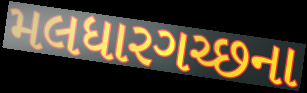
મલધારગચ્છના